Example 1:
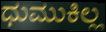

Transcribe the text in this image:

ಧುಮುಕಿಲ್ಲ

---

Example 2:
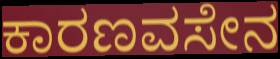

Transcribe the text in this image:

ಕಾರಣವಸೇನ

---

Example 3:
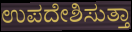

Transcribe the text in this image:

ಉಪದೇಶಿಸುತ್ತಾ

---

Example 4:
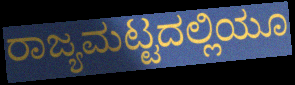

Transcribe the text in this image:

ರಾಜ್ಯಮಟ್ಟದಲ್ಲಿಯೂ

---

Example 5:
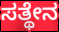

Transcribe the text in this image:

ಸತ್ಥೇನ